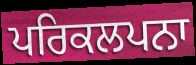
ਪਰਿਕਲਪਨਾ